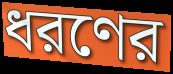
ধরণের